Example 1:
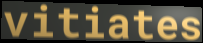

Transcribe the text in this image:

vitiates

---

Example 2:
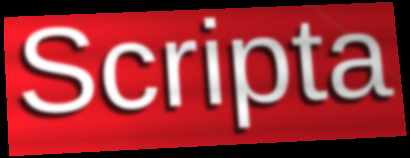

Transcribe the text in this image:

Scripta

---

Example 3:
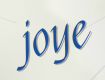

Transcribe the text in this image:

joye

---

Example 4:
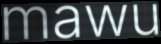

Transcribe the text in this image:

mawu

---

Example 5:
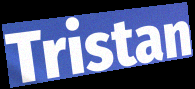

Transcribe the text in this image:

Tristan